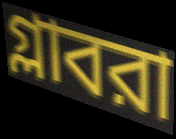
গ্লাবরা